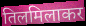
तिलमिलाकर